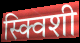
स्क्विशी